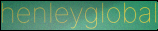
henleyglobal